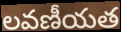
లవణీయత